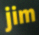
jim